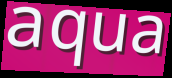
aqua